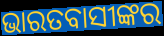
ଭାରତବାସୀଙ୍କର